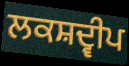
ਲਕਸ਼ਦ੍ਵੀਪ